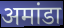
अमांडा